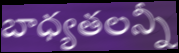
బాధ్యతలన్నీ